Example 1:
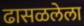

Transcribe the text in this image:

ढासळलेला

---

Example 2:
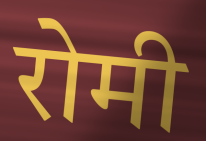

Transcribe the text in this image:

रोमी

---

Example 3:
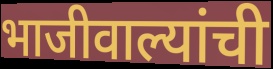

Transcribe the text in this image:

भाजीवाल्यांची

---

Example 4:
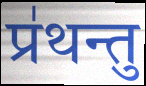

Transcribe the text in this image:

प्र॑थन्तु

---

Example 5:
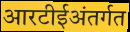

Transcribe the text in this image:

आरटीईअंतर्गत